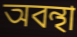
অবন্থা